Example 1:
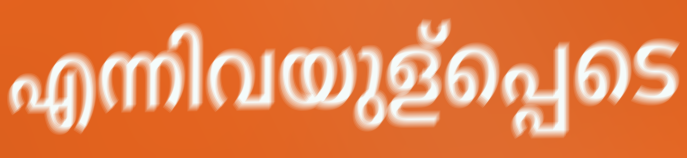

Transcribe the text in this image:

എന്നിവയുള്പ്പെടെ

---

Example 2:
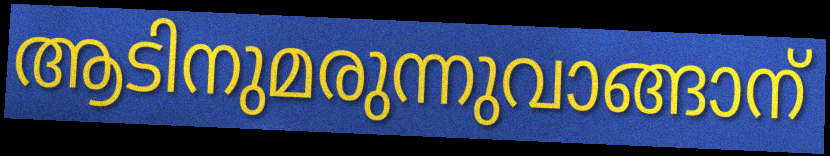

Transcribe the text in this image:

ആടിനുമരുന്നുവാങ്ങാന്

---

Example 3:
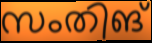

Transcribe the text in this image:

സംതിങ്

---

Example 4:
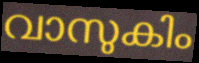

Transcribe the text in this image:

വാസുകിം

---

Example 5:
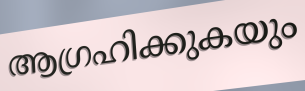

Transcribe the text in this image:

ആഗ്രഹിക്കുകയും